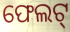
ଫେଲଟ୍